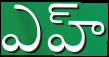
ఎహ్